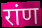
रांण